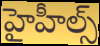
హైహీల్స్